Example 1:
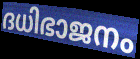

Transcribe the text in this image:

ദധിഭാജനം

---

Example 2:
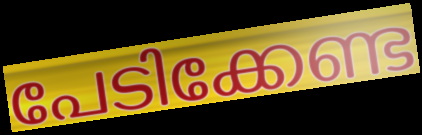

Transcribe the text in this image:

പേടിക്കേണ്ട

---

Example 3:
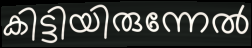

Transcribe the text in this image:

കിട്ടിയിരുന്നേൽ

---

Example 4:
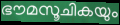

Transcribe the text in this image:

ഭൗമസൂചികയും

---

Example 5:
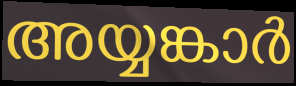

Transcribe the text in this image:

അയ്യങ്കാർ